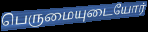
பெருமையுடையோர்